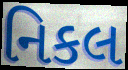
નિકલ